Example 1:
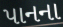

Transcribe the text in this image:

પાનના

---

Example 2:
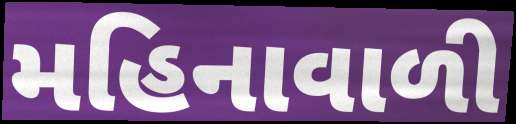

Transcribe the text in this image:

મહિનાવાળી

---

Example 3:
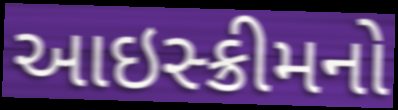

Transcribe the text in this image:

આઇસ્ક્રીમનો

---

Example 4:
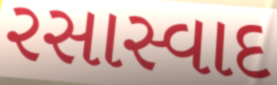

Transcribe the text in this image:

રસાસ્વાદ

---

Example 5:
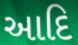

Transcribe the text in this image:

આદિ